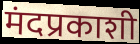
मंदप्रकाशी